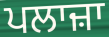
ਪਲਾਜ਼ਾ